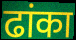
ढांका